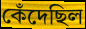
কেঁদেছিল